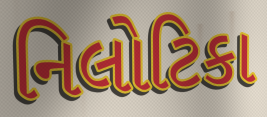
નિલોટિકા